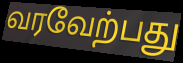
வரவேற்பது